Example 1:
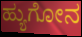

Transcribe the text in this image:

ಹ್ಯುಗೋನ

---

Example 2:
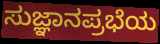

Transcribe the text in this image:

ಸುಜ್ಞಾನಪ್ರಭೆಯ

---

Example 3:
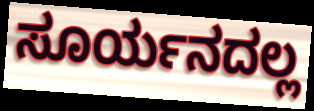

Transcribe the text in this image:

ಸೂರ್ಯನದಲ್ಲ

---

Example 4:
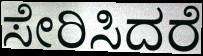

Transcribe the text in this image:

ಸೇರಿಸಿದರೆ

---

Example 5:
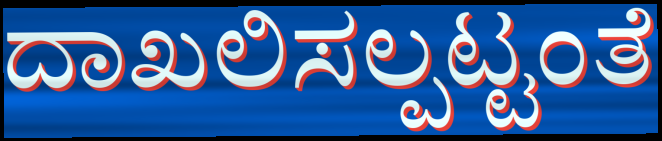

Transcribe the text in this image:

ದಾಖಲಿಸಲ್ಪಟ್ಟಂತೆ